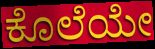
ಕೊಲೆಯೇ